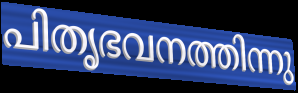
പിതൃഭവനത്തിന്നു